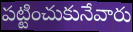
పట్టించుకునేవారు